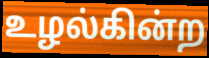
உழல்கின்ற